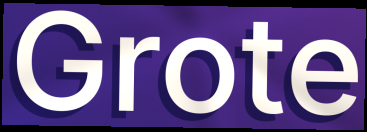
Grote